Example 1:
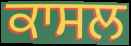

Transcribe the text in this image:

ਕਾਸਲ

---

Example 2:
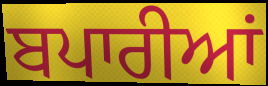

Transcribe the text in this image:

ਬਪਾਰੀਆਂ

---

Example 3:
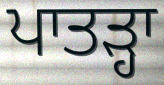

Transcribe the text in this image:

ਪਾਤੜ੍ਹਾ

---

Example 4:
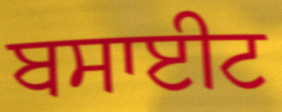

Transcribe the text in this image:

ਬਸਾਈਟ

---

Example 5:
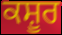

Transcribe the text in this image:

ਕਸ਼ੂਰ